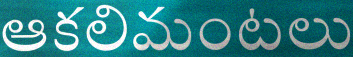
ఆకలిమంటలు